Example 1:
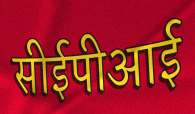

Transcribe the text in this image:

सीईपीआई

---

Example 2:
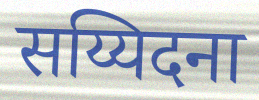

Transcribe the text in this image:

सय्यिदना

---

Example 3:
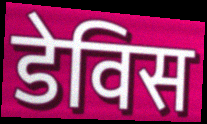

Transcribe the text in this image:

डेविस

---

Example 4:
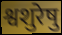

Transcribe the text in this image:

श्वशुरेषु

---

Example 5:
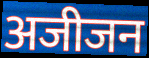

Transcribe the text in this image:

अजीजन